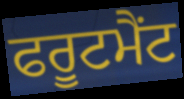
ਫਰੂਟਮੈਂਟ